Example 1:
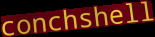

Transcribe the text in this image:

conchshell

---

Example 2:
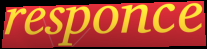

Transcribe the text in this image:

responce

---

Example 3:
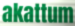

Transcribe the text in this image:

akattum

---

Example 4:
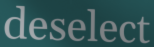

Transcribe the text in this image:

deselect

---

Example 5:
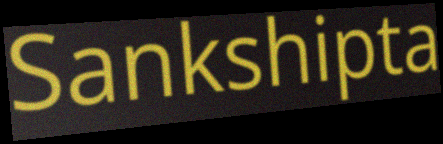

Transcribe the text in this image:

Sankshipta